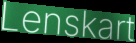
Lenskart